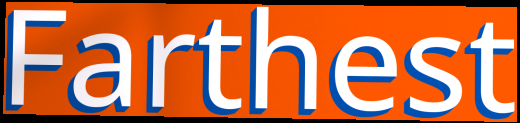
Farthest